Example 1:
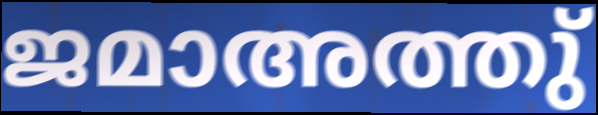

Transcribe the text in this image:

ജമാഅത്തു്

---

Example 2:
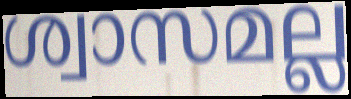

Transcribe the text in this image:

ശ്വാസമല്ല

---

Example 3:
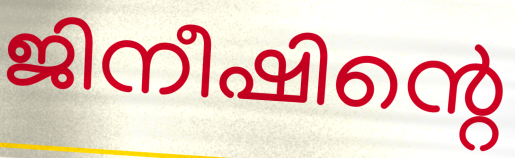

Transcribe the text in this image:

ജിനീഷിന്റെ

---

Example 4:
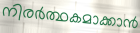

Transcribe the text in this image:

നിരർത്ഥകമാക്കാൻ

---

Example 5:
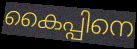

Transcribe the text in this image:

കൈപ്പിനെ